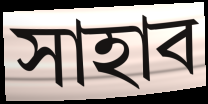
সাহাব